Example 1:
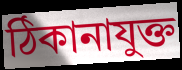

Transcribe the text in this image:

ঠিকানাযুক্ত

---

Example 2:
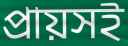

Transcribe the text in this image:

প্রায়সই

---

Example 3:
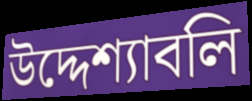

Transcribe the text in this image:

উদ্দেশ্যাবলি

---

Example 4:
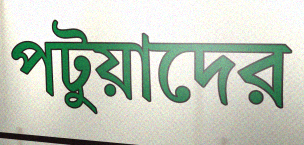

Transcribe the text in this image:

পটুয়াদের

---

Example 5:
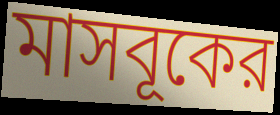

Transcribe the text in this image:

মাসবূকের